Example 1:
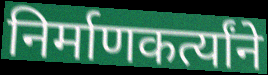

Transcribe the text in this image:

निर्माणकर्त्यांने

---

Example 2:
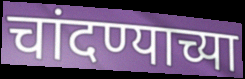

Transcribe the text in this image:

चांदण्याच्या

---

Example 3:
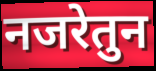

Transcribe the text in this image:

नजरेतुन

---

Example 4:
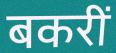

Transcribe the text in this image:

बकरीं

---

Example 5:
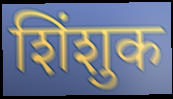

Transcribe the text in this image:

शिंशुक